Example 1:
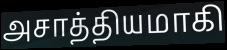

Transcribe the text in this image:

அசாத்தியமாகி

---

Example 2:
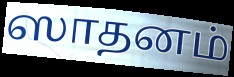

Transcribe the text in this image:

ஸாதனம்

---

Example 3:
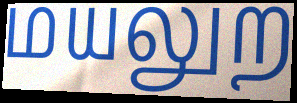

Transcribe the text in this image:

மயலுற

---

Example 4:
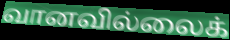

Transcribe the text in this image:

வானவில்லைக்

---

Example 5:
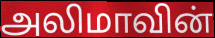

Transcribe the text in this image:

அலிமாவின்